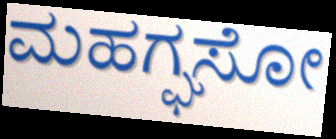
ಮಹಗ್ಘಸೋ